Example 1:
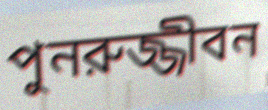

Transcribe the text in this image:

পুনরুজ্জীবন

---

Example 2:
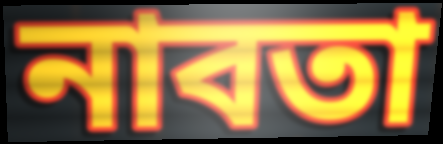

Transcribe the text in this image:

নাবতা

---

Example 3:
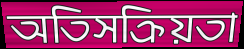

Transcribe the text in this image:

অতিসক্রিয়তা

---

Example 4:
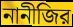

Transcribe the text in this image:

নানীজির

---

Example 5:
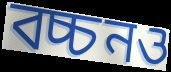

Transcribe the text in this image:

বচ্চনও